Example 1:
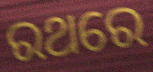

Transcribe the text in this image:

ରଥରେ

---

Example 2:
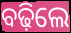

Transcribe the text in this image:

ବଢ଼ିଲେ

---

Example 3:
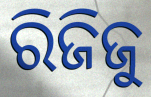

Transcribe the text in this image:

ରିଜିଜୁ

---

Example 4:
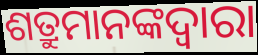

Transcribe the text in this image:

ଶତ୍ରୁମାନଙ୍କଦ୍ଵାରା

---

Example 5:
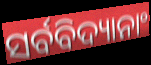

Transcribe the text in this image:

ସର୍ବବିଦ୍ୟାନାଂ